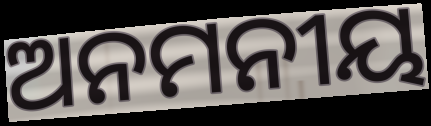
ଅନମନୀୟ